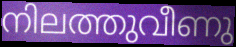
നിലത്തുവീണു